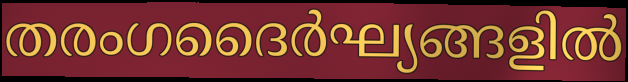
തരംഗദൈർഘ്യങ്ങളിൽ